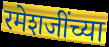
रमेशजींच्या